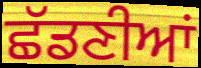
ਛੱਡਣੀਆਂ